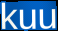
kuu